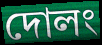
দোলং